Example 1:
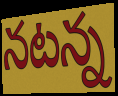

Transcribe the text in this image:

నటన్న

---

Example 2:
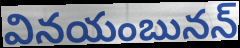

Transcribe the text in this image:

వినయంబునన్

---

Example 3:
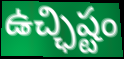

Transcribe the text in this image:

ఉచ్ఛిష్టం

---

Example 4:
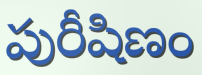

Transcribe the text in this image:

పురీషిణం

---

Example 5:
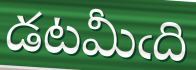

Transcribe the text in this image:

డటమీఁది